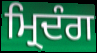
ਮ੍ਰਿਦੰਗ